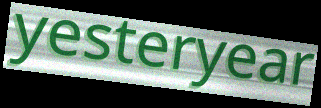
yesteryear